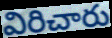
విరిచారు